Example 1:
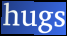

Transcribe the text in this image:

hugs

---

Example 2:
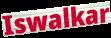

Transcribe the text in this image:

Iswalkar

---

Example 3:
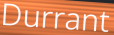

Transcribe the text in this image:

Durrant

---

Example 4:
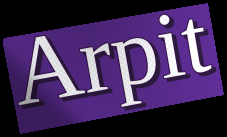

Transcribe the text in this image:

Arpit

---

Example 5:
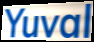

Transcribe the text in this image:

Yuval